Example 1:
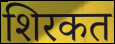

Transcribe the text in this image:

शिरकत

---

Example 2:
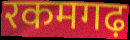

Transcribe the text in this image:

रकमगढ़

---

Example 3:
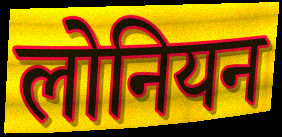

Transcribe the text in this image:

लोनियन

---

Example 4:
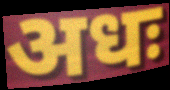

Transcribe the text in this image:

अधः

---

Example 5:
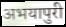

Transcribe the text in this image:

अभयापुरी